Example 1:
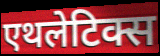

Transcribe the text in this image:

एथलेटिक्स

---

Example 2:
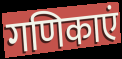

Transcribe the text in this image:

गणिकाएं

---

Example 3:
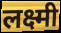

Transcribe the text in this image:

लक्ष्मी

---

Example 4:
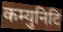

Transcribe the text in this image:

कम्युनिटि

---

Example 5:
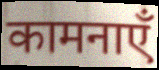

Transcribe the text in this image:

कामनाएँ